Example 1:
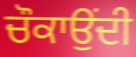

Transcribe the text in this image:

ਚੌਕਾਉਂਦੀ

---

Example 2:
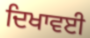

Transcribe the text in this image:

ਦਿਖਾਵਈ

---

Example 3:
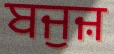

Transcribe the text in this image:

ਬਜੁਜ਼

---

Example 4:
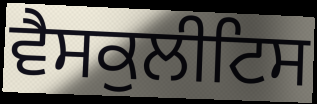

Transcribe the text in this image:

ਵੈਸਕੁਲੀਟਿਸ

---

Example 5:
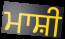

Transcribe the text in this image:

ਮਾਸ਼ੀ